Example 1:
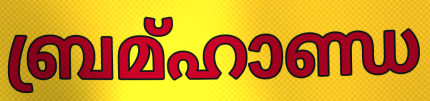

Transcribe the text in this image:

ബ്രമ്ഹാണ്ഡ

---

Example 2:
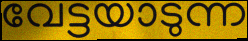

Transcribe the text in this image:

വേട്ടയാടുന്ന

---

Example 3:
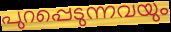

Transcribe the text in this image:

പുറപ്പെടുന്നവയും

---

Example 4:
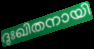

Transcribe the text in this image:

ദുഃഖിതനായി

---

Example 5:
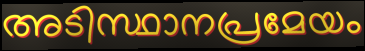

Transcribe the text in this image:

അടിസ്ഥാനപ്രമേയം